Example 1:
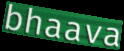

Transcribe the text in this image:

bhaava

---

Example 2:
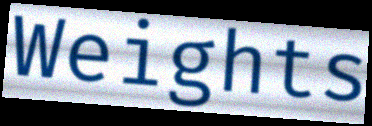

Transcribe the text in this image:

Weights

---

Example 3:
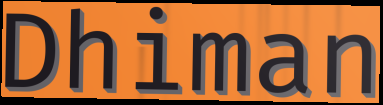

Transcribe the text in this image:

Dhiman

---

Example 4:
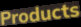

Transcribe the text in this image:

Products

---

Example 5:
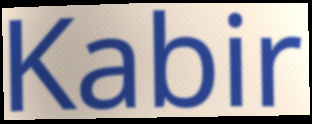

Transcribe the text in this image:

Kabir